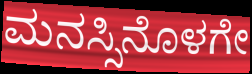
ಮನಸ್ಸಿನೊಳಗೇ